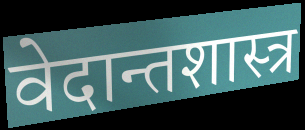
वेदान्तशास्त्र